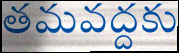
తమవద్దకు